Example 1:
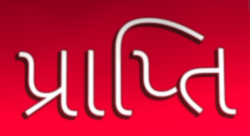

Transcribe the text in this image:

પ્રાપ્તિ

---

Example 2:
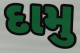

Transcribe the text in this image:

દામુ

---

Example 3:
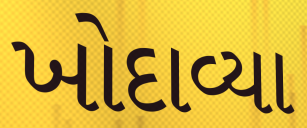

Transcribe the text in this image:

ખોદાવ્યા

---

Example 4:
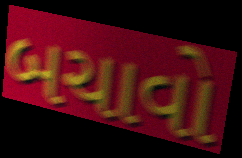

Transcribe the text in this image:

બચાવો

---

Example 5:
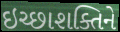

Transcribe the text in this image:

ઇચ્છાશક્તિને